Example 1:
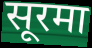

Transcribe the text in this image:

सूरमा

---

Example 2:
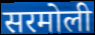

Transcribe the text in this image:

सरमोली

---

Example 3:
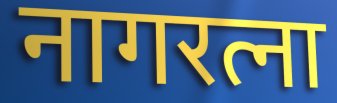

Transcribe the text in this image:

नागरत्ना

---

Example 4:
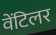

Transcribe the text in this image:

वेंटिलर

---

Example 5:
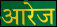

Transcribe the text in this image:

आरेज